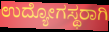
ಉದ್ಯೋಗಸ್ಥರಾಗಿ